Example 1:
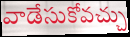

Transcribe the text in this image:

వాడేసుకోవచ్చు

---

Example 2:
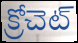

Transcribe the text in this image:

క్రోచెట్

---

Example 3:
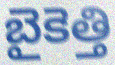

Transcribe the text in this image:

బైకెత్తి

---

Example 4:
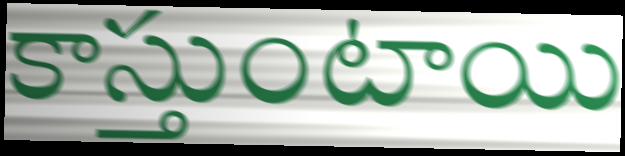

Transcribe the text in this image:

కాస్తుంటాయి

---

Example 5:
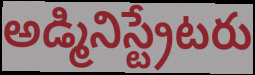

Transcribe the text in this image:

అడ్మినిస్ట్రేటరు